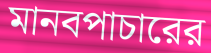
মানবপাচারের